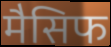
मैसिफ